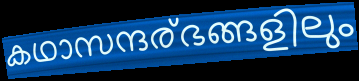
കഥാസന്ദര്ഭങ്ങളിലും